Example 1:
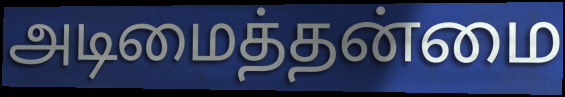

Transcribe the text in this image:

அடிமைத்தன்மை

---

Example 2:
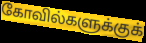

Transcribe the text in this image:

கோவில்களுக்குக்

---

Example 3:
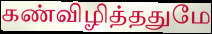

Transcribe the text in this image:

கண்விழித்ததுமே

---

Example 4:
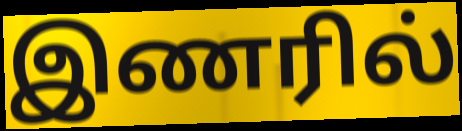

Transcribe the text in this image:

இணரில்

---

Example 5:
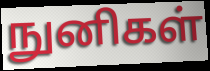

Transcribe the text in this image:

நுனிகள்